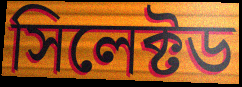
সিলেক্টড